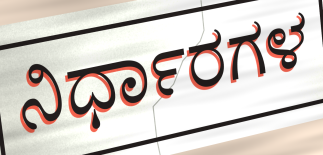
ನಿರ್ಧಾರಗಳ